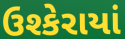
ઉશ્કેરાયાં